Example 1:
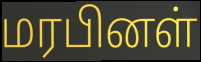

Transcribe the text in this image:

மரபினள்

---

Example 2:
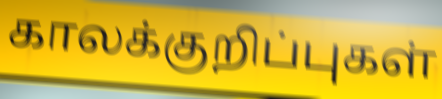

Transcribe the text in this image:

காலக்குறிப்புகள்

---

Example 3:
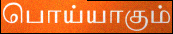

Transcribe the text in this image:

பொய்யாகும்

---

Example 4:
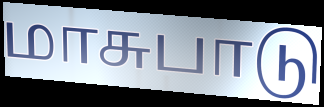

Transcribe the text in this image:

மாசுபாடு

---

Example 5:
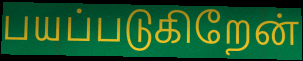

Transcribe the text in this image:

பயப்படுகிறேன்